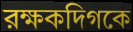
রক্ষকদিগকে